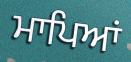
ਮਾਪਿਆਂ